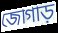
জোগাড়